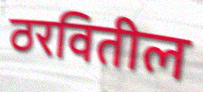
ठरवितील